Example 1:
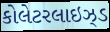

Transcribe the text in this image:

કોલેટરલાઇઝ્ડ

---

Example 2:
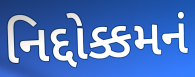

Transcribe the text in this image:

નિદ્દોક્કમનં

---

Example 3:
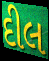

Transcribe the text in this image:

દીલ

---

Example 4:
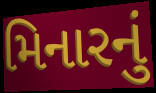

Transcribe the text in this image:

મિનારનું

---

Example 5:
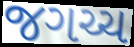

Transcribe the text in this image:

જગચ્ચ